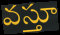
వస్తూ